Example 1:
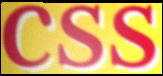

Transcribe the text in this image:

css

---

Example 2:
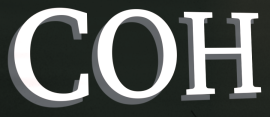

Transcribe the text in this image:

COH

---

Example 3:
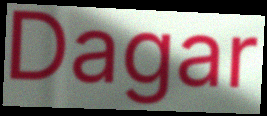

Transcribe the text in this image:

Dagar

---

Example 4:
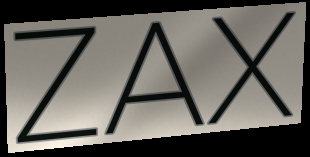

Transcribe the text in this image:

ZAX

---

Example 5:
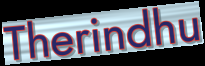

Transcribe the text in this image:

Therindhu